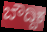
ಬೌದ್ದಿಕ